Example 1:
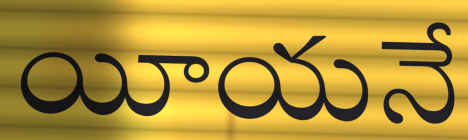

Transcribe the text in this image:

యీయనే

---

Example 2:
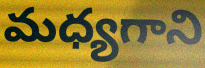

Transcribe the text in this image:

మధ్యగాని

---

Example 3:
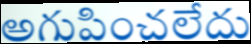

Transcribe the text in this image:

అగుపించలేదు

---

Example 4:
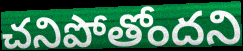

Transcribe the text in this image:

చనిపోతోందని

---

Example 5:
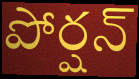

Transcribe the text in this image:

పోర్షన్